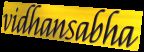
vidhansabha